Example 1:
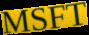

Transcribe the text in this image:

MSFT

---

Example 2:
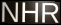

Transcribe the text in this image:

NHR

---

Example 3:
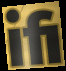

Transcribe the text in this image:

ifi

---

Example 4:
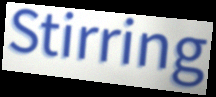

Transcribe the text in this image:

Stirring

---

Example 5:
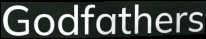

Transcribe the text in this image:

Godfathers